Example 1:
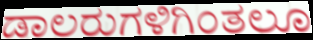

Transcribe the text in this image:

ಡಾಲರುಗಳಿಗಿಂತಲೂ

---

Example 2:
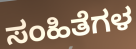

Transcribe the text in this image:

ಸಂಹಿತೆಗಳ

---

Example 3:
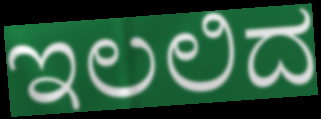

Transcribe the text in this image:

ಇಲಲಿದ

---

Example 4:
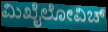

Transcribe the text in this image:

ಮಿಖೈಲೋವಿಚ್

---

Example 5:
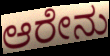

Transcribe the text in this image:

ಆರೇನು